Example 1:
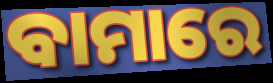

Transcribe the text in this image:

ବାମାରେ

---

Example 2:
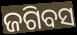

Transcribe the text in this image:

ଜଗିବସ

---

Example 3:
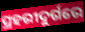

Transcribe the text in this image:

ପ୍ରହରୀଦୁର୍ଗରେ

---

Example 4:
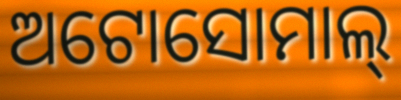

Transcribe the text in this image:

ଅଟୋସୋମାଲ୍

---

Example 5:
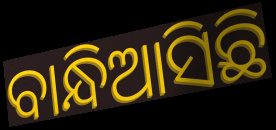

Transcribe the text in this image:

ବାନ୍ଧିଆସିଛି